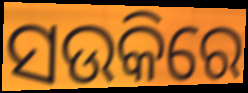
ସଉକିରେ